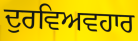
ਦੁਰਵਿਅਵਹਾਰ